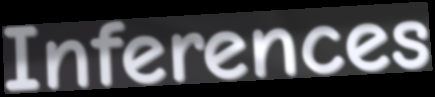
Inferences